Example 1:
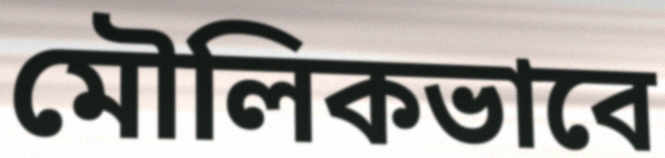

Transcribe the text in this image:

মৌলিকভাবে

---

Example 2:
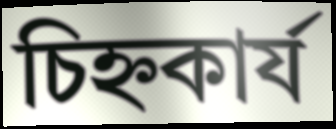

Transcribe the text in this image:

চিহ্নকার্য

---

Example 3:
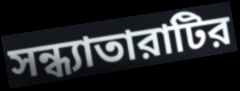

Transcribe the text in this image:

সন্ধ্যাতারাটির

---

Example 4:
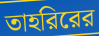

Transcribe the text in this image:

তাহরিরের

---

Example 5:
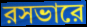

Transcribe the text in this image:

রসভারে